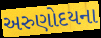
અરુણોદયના